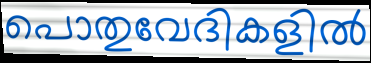
പൊതുവേദികളിൽ